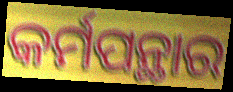
କର୍ମପନ୍ଥାର